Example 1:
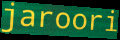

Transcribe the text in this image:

jaroori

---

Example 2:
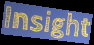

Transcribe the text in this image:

Insight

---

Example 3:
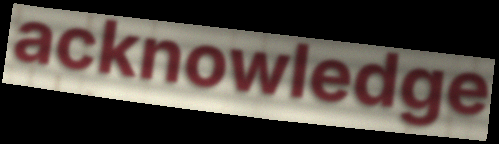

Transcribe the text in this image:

acknowledge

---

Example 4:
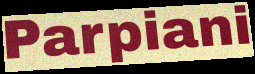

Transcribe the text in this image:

Parpiani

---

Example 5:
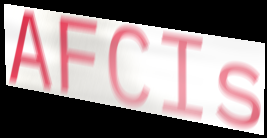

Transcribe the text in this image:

AFCIs